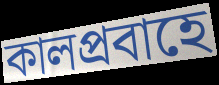
কালপ্রবাহে